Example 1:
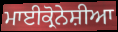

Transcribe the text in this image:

ਮਾਈਕ੍ਰੋਨੇਸ਼ੀਆ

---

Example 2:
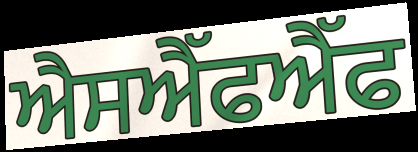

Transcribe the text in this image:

ਐਸਐੱਫਐੱਫ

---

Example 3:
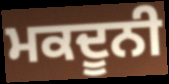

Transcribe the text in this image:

ਮਕਦੂਨੀ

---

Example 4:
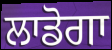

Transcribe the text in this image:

ਲਾਡੋਗਾ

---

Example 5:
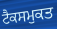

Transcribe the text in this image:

ਟੈਕਸਮੁਕਤ